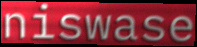
niswase